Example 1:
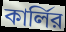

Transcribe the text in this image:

কার্লির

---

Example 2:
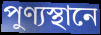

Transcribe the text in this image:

পুণ্যস্থানে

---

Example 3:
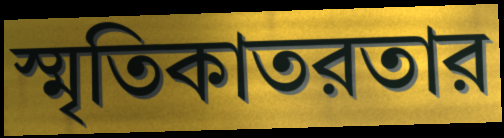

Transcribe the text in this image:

স্মৃতিকাতরতার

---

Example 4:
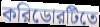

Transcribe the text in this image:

করিডোরটিতে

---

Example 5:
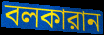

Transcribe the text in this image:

বলকারান